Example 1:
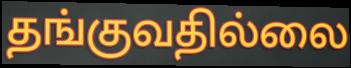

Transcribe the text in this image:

தங்குவதில்லை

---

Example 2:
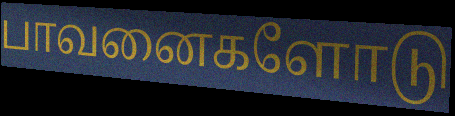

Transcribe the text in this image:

பாவனைகளோடு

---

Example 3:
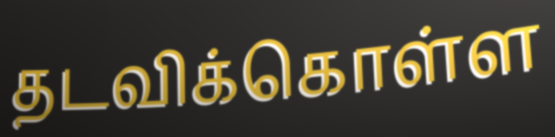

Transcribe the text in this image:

தடவிக்கொள்ள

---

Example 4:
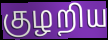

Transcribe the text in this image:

குழறிய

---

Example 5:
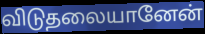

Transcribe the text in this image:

விடுதலையானேன்